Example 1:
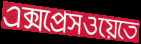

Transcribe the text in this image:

এক্সপ্রেসওয়েতে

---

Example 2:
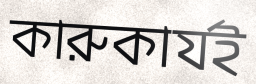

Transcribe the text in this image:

কারুকার্যই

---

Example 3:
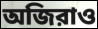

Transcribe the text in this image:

অজিরাও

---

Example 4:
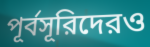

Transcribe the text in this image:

পূর্বসূরিদেরও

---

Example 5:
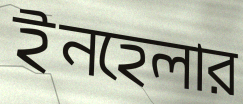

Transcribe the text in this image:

ইনহেলার